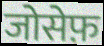
जोसेफ़